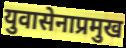
युवासेनाप्रमुख